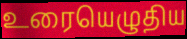
உரையெழுதிய